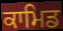
ਕਾਮਿਡ